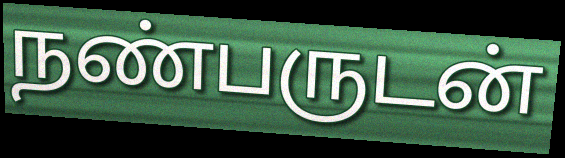
நண்பருடன்